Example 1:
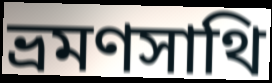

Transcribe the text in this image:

ভ্রমণসাথি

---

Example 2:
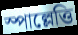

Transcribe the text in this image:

স্পাল্লেত্তি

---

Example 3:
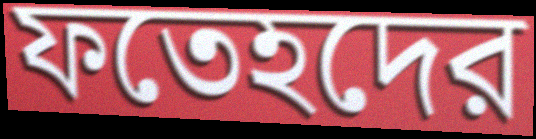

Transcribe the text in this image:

ফতেহদের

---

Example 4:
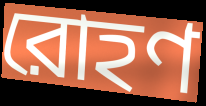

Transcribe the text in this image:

রোহণ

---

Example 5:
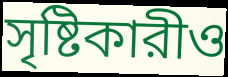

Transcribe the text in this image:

সৃষ্টিকারীও